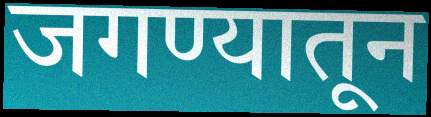
जगण्यातून